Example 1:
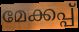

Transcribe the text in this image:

മേക്കപ്പ്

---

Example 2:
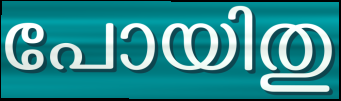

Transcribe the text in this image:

പോയിതു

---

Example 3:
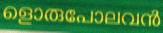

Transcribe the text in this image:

ളൊരുപോലവൻ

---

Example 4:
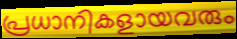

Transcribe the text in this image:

പ്രധാനികളായവരും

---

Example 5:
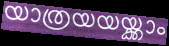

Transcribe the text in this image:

യാത്രയയയ്ക്കാം